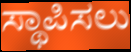
ಸ್ಥಾಪಿಸಲು